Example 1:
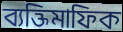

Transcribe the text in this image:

ব্যক্তিমাফিক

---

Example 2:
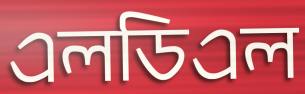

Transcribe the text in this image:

এলডিএল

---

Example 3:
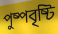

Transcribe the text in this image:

পুষ্পবৃষ্টি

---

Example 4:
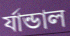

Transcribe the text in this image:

র্যান্ডাল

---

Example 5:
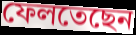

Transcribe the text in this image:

ফেলতেছেন